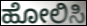
ಹೋಲಿಸಿ